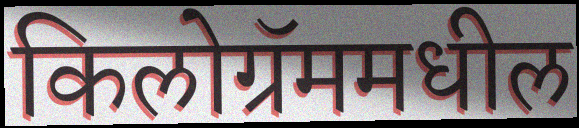
किलोग्रॅममधील